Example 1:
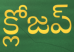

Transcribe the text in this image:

క్లోజప్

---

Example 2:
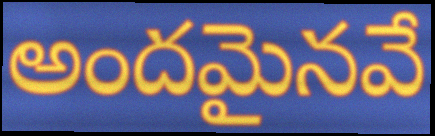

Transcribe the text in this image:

అందమైనవే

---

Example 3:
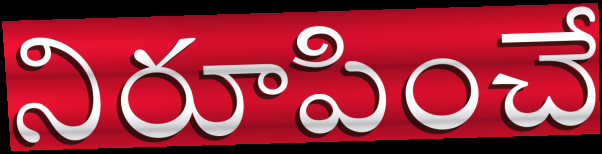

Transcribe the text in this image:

నిరూపించే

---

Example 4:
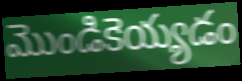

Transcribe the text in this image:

మొండికెయ్యడం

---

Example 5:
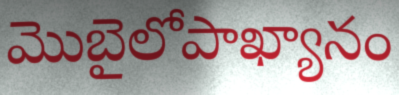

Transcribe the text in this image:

మొబైలోపాఖ్యానం